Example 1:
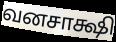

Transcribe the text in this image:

வனசாக்ஷி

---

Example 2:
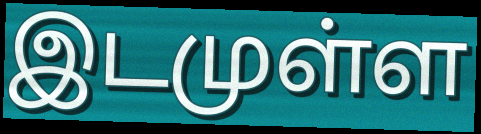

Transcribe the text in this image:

இடமுள்ள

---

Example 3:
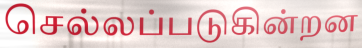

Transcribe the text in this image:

செல்லப்படுகின்றன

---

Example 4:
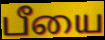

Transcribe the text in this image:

பீயை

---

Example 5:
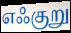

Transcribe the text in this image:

எஃகுறு